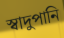
স্বাদুপানি